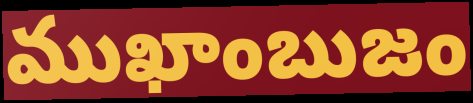
ముఖాంబుజం